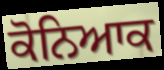
ਕੋਨਿਆਕ